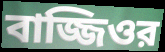
বাজ্জিওর